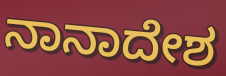
ನಾನಾದೇಶ